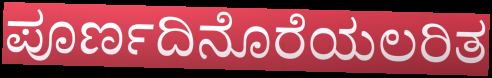
ಪೂರ್ಣದಿನೊರೆಯಲರಿತ